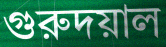
গুরুদয়াল